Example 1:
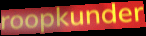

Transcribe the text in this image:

roopkunder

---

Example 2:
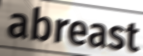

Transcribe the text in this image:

abreast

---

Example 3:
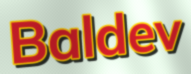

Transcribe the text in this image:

Baldev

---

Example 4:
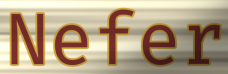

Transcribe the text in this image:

Nefer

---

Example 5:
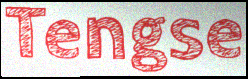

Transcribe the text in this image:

Tengse